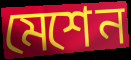
মেশেন